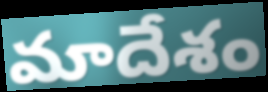
మాదేశం